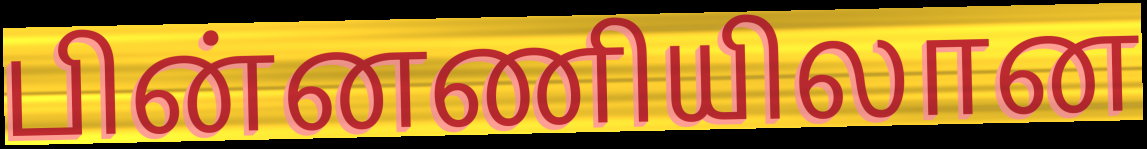
பின்னணியிலான